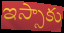
ఇస్సాకు